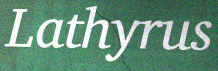
Lathyrus